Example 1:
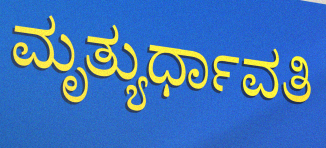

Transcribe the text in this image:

ಮೃತ್ಯುರ್ಧಾವತಿ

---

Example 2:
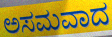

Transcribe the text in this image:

ಅಸಮವಾದ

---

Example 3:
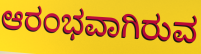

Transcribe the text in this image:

ಆರಂಭವಾಗಿರುವ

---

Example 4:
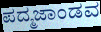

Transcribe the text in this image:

ಪದ್ಮಜಾಂಡವ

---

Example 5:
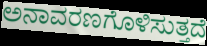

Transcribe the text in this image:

ಅನಾವರಣಗೊಳಿಸುತ್ತದೆ